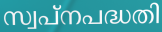
സ്വപ്നപദ്ധതി